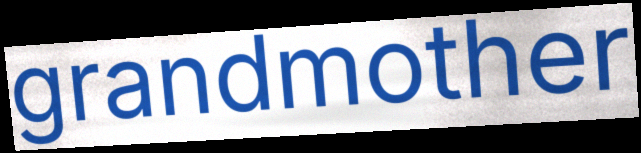
grandmother